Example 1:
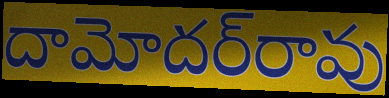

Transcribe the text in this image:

దామోదర్‌రావు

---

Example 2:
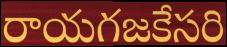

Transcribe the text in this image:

రాయగజకేసరి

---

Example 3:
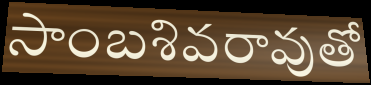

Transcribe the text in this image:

సాంబశివరావుతో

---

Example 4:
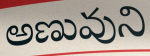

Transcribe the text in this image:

అణువుని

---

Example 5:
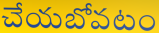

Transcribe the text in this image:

చేయబోవటం